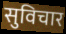
सुविचार